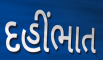
દહીંભાત